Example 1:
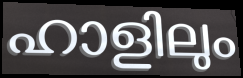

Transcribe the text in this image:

ഹാളിലും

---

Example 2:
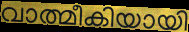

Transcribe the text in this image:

വാത്മീകിയായി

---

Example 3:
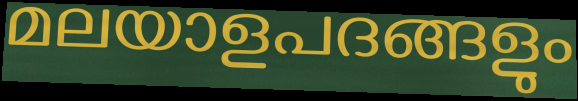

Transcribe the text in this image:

മലയാളപദങ്ങളും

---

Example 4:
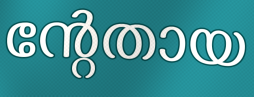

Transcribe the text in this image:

ന്റേതായ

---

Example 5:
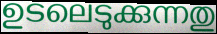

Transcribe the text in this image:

ഉടലെടുക്കുന്നതു